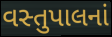
વસ્તુપાલનાં